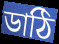
ডাঠি